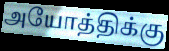
அயோத்திக்கு